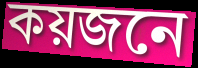
কয়জনে